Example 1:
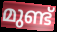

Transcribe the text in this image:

മുണ്ട്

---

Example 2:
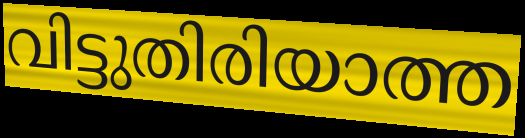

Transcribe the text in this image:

വിട്ടുതിരിയാത്ത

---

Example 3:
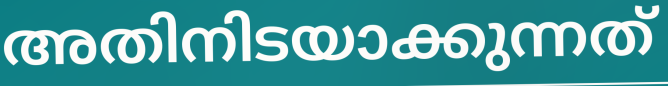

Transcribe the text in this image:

അതിനിടയാക്കുന്നത്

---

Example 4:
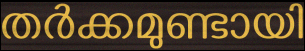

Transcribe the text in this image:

തർക്കമുണ്ടായി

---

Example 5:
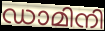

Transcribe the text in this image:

ഡാമിനി